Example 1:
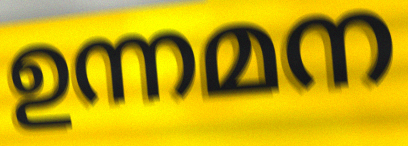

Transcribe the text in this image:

ഉന്നമന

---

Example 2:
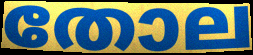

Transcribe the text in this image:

തോല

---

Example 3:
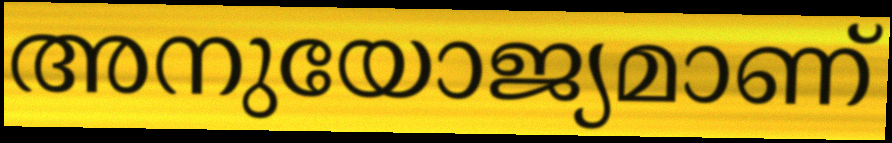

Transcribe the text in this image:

അനുയോജ്യമാണ്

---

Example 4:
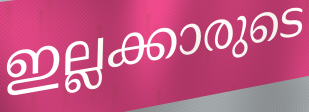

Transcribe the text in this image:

ഇല്ലക്കാരുടെ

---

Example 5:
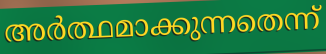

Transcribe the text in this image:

അർത്ഥമാക്കുന്നതെന്ന്